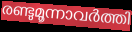
രണ്ടുമൂന്നാവർത്തി